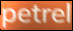
petrel